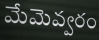
మేమెవ్వరం